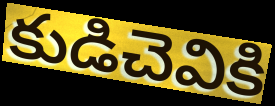
కుడిచెవికి